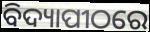
ବିଦ୍ୟାପୀଠରେ